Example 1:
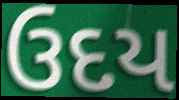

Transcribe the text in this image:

ઉદય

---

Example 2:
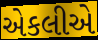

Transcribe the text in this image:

એકલીએ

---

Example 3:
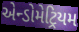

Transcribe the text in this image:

એન્ડોમેટ્રિયમ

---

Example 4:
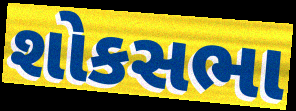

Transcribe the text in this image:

શોકસભા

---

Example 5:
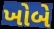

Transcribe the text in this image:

ખોબે